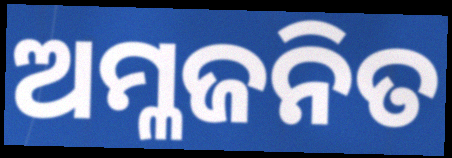
ଅମ୍ଳଜନିତ